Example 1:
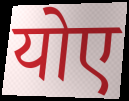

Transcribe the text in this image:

योए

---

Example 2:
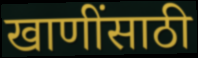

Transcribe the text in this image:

खाणींसाठी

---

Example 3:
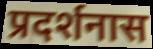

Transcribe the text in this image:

प्रदर्शनास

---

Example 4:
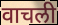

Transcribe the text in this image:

वाचली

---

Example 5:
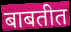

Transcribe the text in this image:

बाबतीत